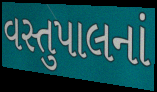
વસ્તુપાલનાં